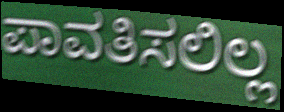
ಪಾವತಿಸಲಿಲ್ಲ